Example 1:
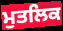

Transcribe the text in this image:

ਮੁਤਲਿਕ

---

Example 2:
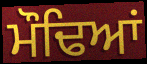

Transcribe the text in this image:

ਮੌਢਿਆਂ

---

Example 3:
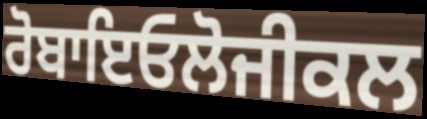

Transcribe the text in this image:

ਰੋਬਾਇਓਲੋਜੀਕਲ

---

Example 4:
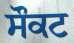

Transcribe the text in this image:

ਸੌਕਟ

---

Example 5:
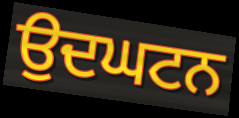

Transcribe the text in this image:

ਉਦਘਟਨ